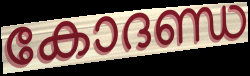
കോദണ്ഡ